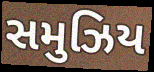
સમુઝિય